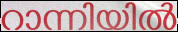
റാന്നിയിൽ